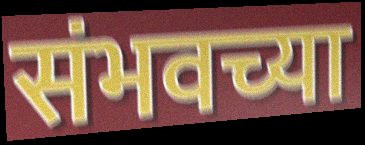
संभवच्या